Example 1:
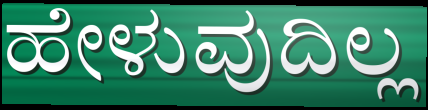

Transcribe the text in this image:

ಹೇಳುವುದಿಲ್ಲ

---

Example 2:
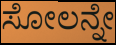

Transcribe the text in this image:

ಸೋಲನ್ನೇ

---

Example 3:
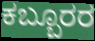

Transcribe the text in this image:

ಕಬ್ಬೂರರ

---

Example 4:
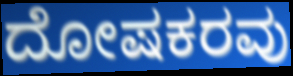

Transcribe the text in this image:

ದೋಷಕರವು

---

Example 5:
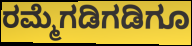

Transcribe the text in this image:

ರಮ್ಮೆಗಡಿಗಡಿಗೂ